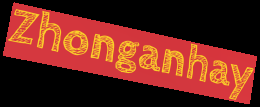
Zhonganhay